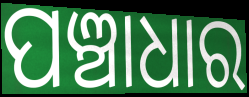
ପଞ୍ଚାଧାର